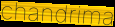
chandrima